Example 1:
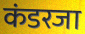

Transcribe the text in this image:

कंडरजा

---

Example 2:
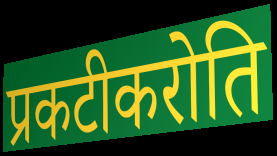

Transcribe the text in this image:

प्रकटीकरोति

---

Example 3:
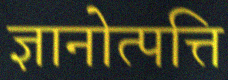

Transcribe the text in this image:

ज्ञानोत्पत्ति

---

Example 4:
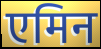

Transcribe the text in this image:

एमिन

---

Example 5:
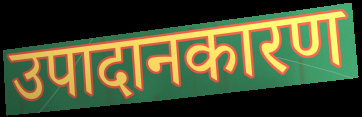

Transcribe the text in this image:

उपादानकारण